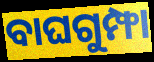
ବାଘଗୁମ୍ଫା